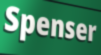
Spenser